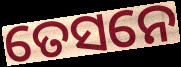
ତେସନେ